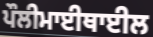
ਪੌਲੀਮਾਈਥਾਈਲ